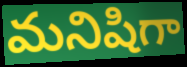
మనిషిగా